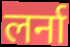
लर्ना